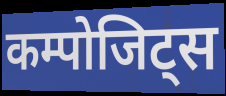
कम्पोजिट्स